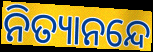
ନିତ୍ୟାନନ୍ଦେ